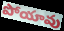
పోయావు